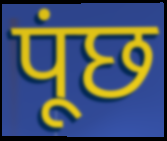
पूंछ